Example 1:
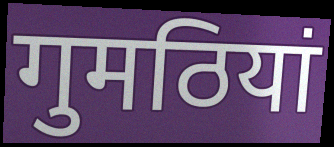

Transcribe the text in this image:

गुमठियां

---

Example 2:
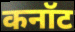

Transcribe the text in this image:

कनॉट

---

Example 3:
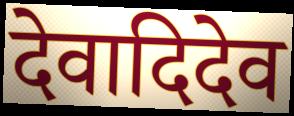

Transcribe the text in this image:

देवादिदेव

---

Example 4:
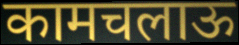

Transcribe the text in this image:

कामचलाऊ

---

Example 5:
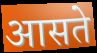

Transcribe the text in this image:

आसते